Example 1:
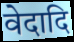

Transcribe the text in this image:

वेदादि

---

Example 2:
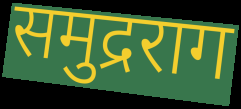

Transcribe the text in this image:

समुद्रराग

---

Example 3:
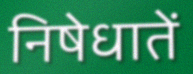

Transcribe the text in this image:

निषेधातें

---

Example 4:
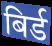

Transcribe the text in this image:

बिर्ड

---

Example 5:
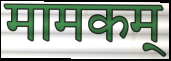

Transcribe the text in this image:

मामकम्